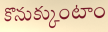
కొనుక్కుంటాం